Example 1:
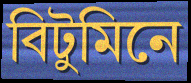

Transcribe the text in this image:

বিটুমিনে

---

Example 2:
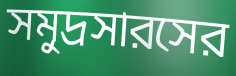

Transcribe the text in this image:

সমুদ্রসারসের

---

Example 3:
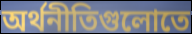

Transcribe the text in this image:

অর্থনীতিগুলোতে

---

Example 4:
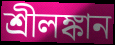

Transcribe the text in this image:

শ্রীলঙ্কান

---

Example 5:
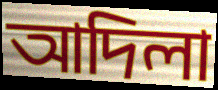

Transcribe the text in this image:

আদিলা